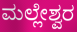
ಮಲ್ಲೇಶ್ವರ